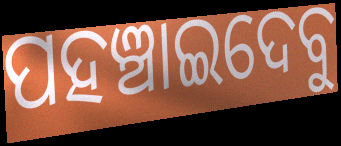
ପହଞ୍ଚାଇଦେବୁ